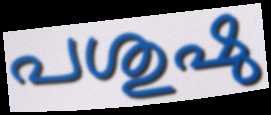
പശുഷു